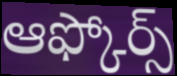
ఆఫ్కోర్స్